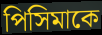
পিসিমাকে